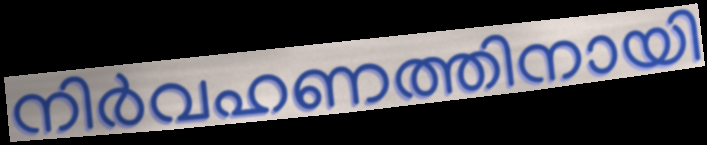
നിർവഹണത്തിനായി